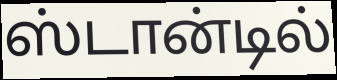
ஸ்டான்டில்